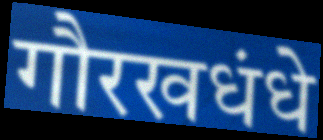
गौरखधंधे